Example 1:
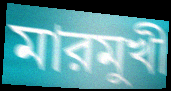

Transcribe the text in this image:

মারমুখী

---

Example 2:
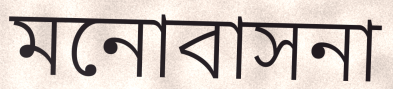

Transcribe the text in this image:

মনোবাসনা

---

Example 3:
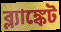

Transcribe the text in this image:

ব্ল্যাঙ্কেট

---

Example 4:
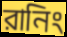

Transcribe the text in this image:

রানিং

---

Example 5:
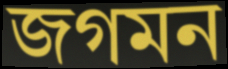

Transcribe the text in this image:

জগমন